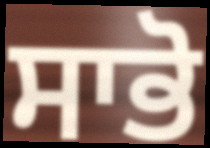
ਸਾਭੋ